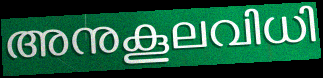
അനുകൂലവിധി